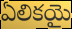
ఏలికయై